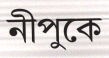
নীপুকে